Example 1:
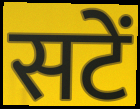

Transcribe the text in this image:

सटें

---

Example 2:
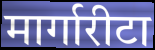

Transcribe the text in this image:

मार्गारीटा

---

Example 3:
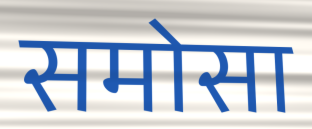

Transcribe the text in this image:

समोसा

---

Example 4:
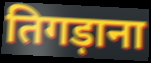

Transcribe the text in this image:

तिगड़ाना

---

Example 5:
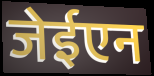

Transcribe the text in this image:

जेईएन